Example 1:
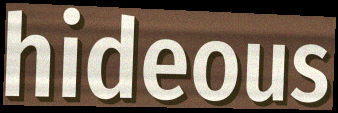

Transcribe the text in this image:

hideous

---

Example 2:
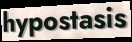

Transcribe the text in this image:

hypostasis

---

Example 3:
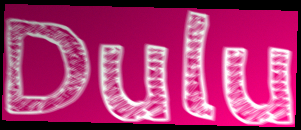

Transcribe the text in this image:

Dulu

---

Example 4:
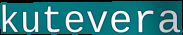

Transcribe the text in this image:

kutevera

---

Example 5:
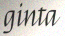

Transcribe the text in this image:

ginta